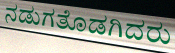
ನಡುಗತೊಡಗಿದರು